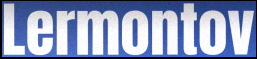
Lermontov